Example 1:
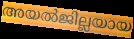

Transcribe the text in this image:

അയൽജില്ലയായ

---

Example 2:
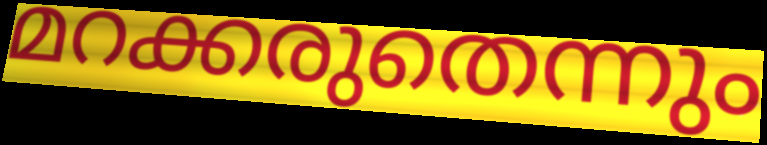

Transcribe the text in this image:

മറക്കരുതെന്നും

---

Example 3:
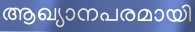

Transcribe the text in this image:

ആഖ്യാനപരമായി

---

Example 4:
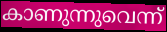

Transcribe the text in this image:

കാണുന്നുവെന്ന്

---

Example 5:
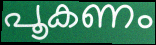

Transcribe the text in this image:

പൂകണം